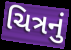
ચિત્રનું